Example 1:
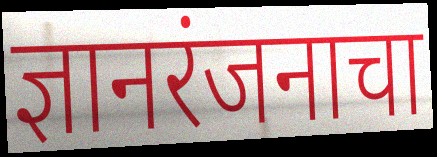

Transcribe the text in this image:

ज्ञानरंजनाचा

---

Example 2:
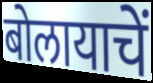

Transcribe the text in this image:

बोलायाचें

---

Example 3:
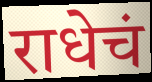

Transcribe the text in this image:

राधेचं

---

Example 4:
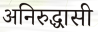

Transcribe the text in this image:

अनिरुद्धासी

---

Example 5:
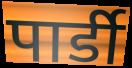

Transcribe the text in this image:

पार्डी